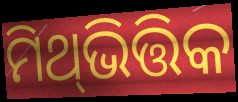
ମିଥ୍‍ଭିତ୍ତିକ